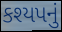
કશ્યપનું